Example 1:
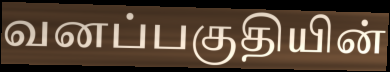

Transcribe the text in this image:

வனப்பகுதியின்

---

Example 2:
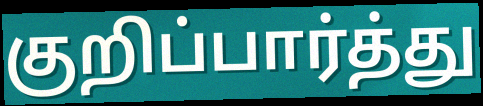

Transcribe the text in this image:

குறிப்பார்த்து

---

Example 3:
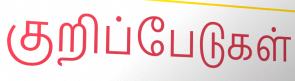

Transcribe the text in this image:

குறிப்பேடுகள்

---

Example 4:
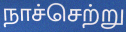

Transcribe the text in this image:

நாச்செற்று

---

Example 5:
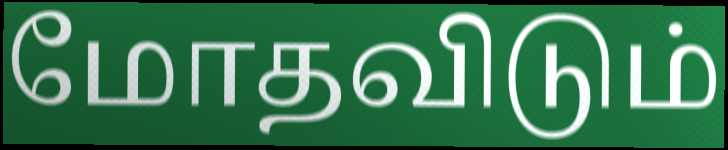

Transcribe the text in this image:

மோதவிடும்